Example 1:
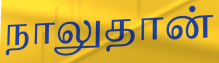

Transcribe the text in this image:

நாலுதான்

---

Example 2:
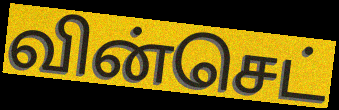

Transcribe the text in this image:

வின்செட்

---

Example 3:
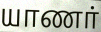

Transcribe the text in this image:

யாணர்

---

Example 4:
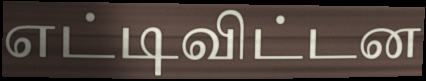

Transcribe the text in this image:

எட்டிவிட்டன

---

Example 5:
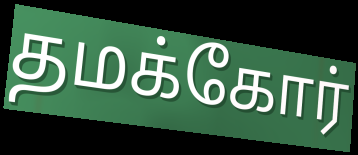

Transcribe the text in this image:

தமக்கோர்